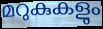
മറുകുകളും